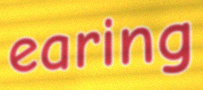
earing